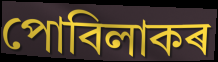
পোবিলাকৰ